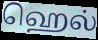
ஹெல்